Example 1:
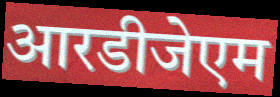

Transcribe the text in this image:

आरडीजेएम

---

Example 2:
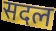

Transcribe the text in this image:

सदल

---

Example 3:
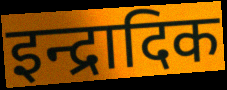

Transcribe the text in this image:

इन्द्रादिक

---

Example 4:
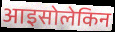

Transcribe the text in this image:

आइसोलेकिन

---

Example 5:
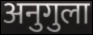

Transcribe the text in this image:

अनुगुला